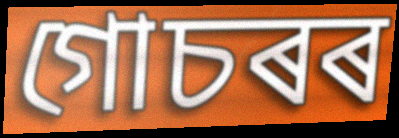
গোচৰৰ